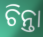
ଚିନ୍ତା